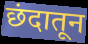
छंदातून